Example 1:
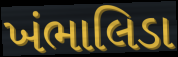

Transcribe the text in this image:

ખંભાલિડા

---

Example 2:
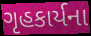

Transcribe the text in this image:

ગૃહકાર્યના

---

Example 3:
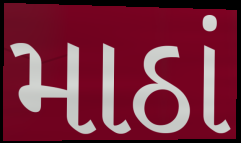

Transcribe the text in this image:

માઠાં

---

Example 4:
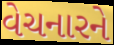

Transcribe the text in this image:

વેચનારને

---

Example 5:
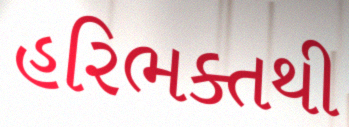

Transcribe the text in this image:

હરિભક્તથી